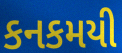
કનકમયી